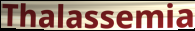
Thalassemia